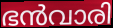
ഭൻവാരി